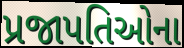
પ્રજાપતિઓના